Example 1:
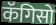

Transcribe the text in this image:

कॅगिसो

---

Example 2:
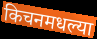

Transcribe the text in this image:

किचनमधल्या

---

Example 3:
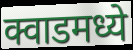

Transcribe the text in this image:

क्वाडमध्ये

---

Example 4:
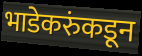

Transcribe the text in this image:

भाडेकरुंकडून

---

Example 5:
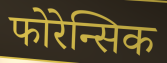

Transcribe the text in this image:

फोरेन्सिक